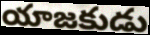
యాజకుడు